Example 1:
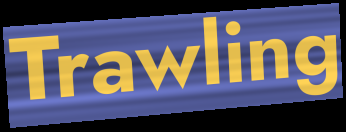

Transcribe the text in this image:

Trawling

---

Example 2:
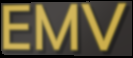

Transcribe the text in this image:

EMV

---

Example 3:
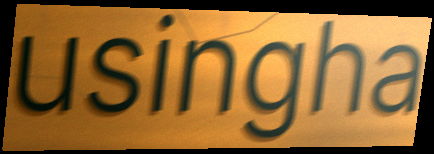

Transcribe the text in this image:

usingha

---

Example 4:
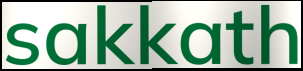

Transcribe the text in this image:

sakkath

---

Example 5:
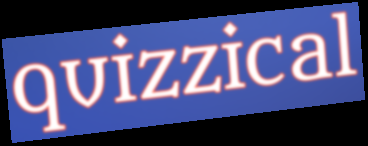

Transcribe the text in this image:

quizzical